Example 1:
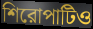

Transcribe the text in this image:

শিরোপাটিও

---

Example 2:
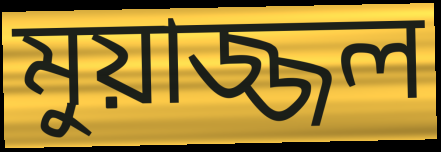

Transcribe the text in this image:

মুয়াজ্জল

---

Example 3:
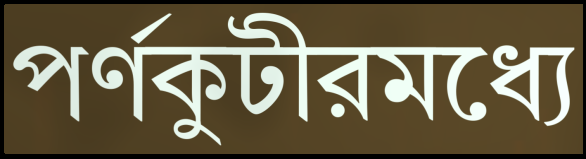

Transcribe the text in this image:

পর্ণকুটীরমধ্যে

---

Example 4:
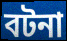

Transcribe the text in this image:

বটনা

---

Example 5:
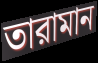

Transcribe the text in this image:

তারামান